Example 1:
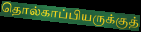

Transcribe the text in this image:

தொல்காப்பியருக்குத்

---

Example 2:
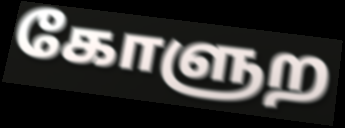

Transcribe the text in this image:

கோளுற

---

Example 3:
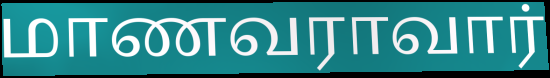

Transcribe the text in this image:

மாணவராவார்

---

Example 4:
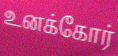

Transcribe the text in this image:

உனக்கோர்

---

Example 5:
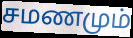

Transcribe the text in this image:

சமணமும்